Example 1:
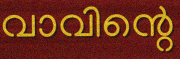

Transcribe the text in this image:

വാവിന്റെ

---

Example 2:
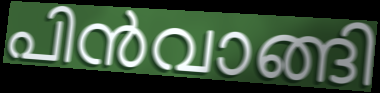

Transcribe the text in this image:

പിൻവാങ്ങി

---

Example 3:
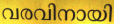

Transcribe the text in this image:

വരവിനായി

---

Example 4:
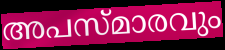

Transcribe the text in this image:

അപസ്മാരവും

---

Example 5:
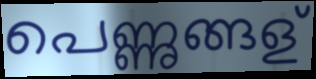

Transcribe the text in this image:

പെണ്ണുങ്ങള്